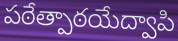
పఠేత్పాఠయేద్వాపి